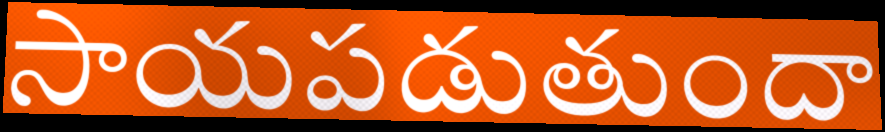
సాయపడుతుందా